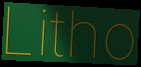
Litho